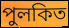
পুলকিত